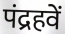
पंद्रहवें